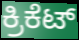
ಕ್ರಿಕೆಟ್